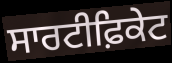
ਸਾਰਟੀਫ਼ਿਕੇਟ